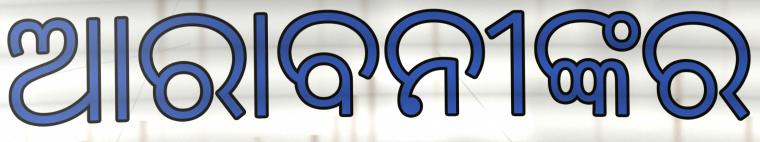
ଆରାବନୀଙ୍କର